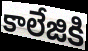
కాలేజికి